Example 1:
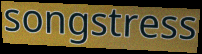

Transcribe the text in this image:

songstress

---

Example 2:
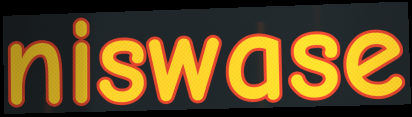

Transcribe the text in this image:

niswase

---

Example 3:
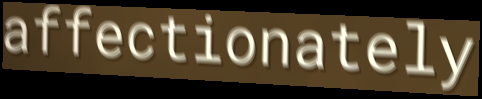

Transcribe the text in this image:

affectionately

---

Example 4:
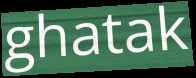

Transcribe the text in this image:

ghatak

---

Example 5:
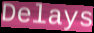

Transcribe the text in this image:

Delays